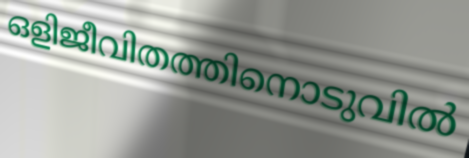
ഒളിജീവിതത്തിനൊടുവിൽ